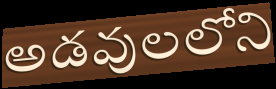
అడవులలోని